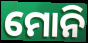
ମୋନି